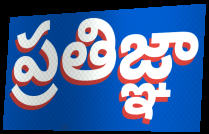
ప్రతిజ్ఞా